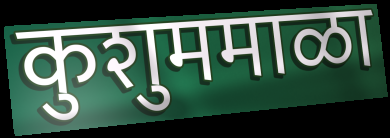
कुशुममाळा